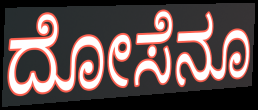
ದೋಸೆನೂ